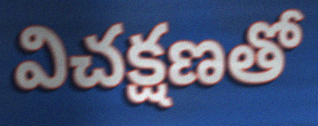
విచక్షణతో